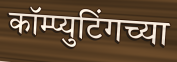
कॉम्प्युटिंगच्या